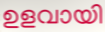
ഉളവായി